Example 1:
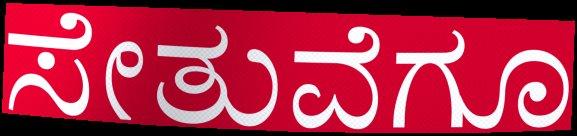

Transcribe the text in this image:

ಸೇತುವೆಗೂ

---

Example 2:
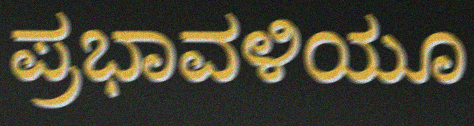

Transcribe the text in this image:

ಪ್ರಭಾವಳಿಯೂ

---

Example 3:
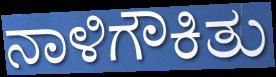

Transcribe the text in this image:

ನಾಳಿಗೌಕಿತು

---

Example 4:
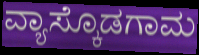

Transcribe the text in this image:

ವ್ಯಾಸ್ಕೊಡಗಾಮ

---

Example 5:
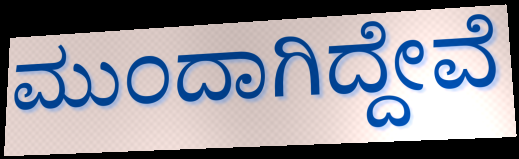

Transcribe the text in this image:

ಮುಂದಾಗಿದ್ದೇವೆ